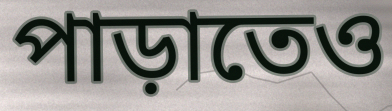
পাড়াতেও